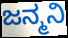
ಜನ್ಮನಿ